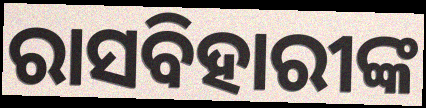
ରାସବିହାରୀଙ୍କ